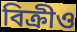
বিক্ৰীও